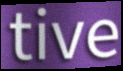
tive